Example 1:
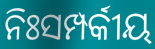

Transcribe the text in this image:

ନିଃସମ୍ପର୍କୀୟ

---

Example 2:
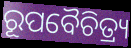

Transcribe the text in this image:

ରୂପବୈଚିତ୍ର୍ୟ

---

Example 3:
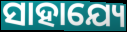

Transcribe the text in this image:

ସାହାଯ୍ୟେ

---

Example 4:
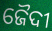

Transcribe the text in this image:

ଜୈଦୀ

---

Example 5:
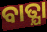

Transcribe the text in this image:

ବାତ୍ଯା